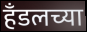
हँडलच्या